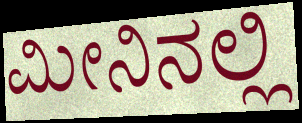
ಮೀನಿನಲ್ಲಿ